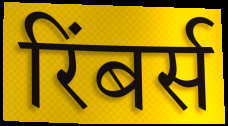
रिंबर्स